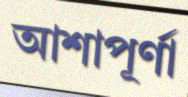
আশাপূর্ণা